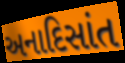
અનાદિસાંત